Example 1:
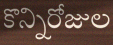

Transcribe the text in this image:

కొన్నిరోజుల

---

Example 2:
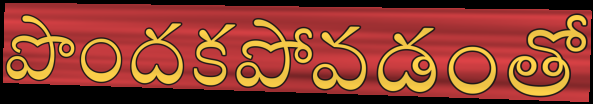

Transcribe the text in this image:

పొందకపోవడంతో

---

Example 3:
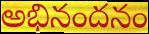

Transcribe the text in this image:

అభినందనం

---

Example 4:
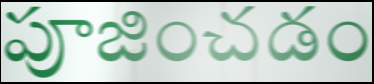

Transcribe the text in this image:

పూజించడం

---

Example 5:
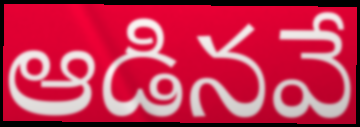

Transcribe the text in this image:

ఆడినవే